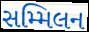
સમ્મિલન